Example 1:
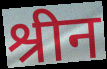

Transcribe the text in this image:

श्रीन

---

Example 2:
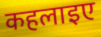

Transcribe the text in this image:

कहलाइए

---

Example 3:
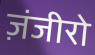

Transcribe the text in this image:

ज़ंजीरो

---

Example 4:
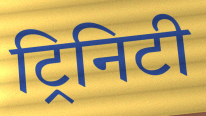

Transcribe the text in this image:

ट्रिनिटी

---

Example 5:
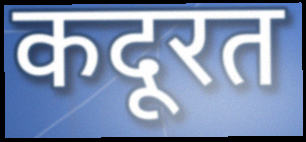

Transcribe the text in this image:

कदूरत